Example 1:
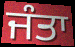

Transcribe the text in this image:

ਜੰਤਾ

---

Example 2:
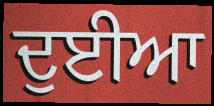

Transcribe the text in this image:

ਦੁਈਆ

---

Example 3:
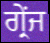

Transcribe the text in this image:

ਗ੍ਰੇਂਜ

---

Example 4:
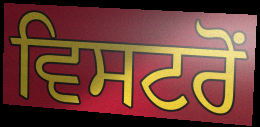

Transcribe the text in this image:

ਵਿਸਟਰੋਂ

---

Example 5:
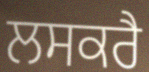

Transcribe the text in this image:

ਲਸਕਰੈ